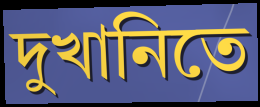
দুখানিতে